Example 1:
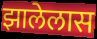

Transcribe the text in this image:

झालेलास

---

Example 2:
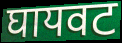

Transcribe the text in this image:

घायवट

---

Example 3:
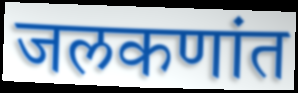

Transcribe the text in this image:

जलकणांत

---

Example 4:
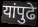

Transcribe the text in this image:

यांपुढे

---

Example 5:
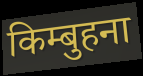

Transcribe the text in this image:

किम्बुहना